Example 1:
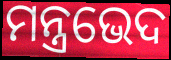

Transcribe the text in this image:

ମନ୍ତ୍ରଭେଦ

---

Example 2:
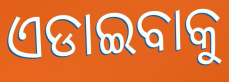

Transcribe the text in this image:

ଏଡାଇବାକୁ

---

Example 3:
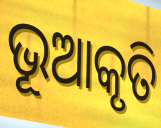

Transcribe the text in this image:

ଭୂଆକୃତି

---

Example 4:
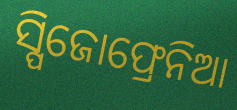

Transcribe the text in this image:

ସ୍ପିଜୋଫ୍ରେନିଆ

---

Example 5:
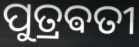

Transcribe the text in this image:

ପୁତ୍ରଵତୀ